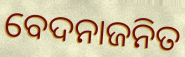
ବେଦନାଜନିତ